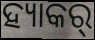
ହ୍ୟାକର୍